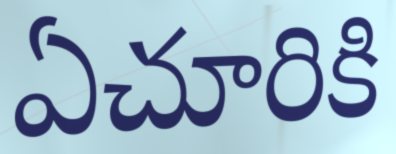
ఏచూరికి